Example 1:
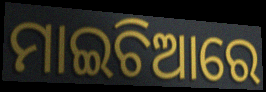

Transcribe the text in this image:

ମାଇଚିଆରେ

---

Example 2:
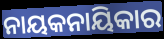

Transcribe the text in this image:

ନାୟକନାୟିକାର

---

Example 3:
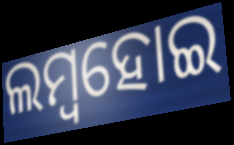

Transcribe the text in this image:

ଲମ୍ୱହୋଇ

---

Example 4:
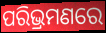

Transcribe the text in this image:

ପରିଭ୍ରମଣରେ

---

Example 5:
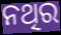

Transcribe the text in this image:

ନଥିର